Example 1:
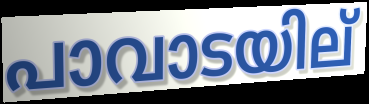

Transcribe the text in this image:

പാവാടയില്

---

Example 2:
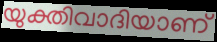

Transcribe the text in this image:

യുക്തിവാദിയാണ്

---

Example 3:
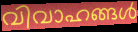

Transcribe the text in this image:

വിവാഹങ്ങൾ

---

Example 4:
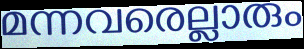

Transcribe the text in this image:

മന്നവരെല്ലാരും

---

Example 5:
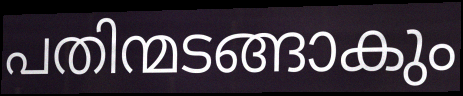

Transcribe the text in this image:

പതിന്മടങ്ങാകും